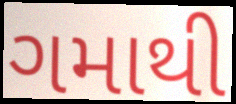
ગમાથી